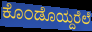
ಕೊಂಡೊಯ್ದರೆಲೆ